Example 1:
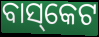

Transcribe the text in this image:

ବାସ୍‌କେଟ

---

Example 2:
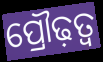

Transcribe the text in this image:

ପ୍ରୌଢ଼ତ୍ୱ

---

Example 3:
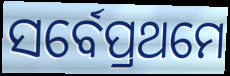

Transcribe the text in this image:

ସର୍ବେପ୍ରଥମେ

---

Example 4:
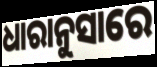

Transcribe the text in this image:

ଧାରାନୁସାରେ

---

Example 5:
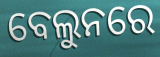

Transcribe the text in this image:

ବେଲୁନରେ